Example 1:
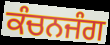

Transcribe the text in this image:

ਕੰਚਨਜੰਗ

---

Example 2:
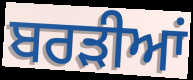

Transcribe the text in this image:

ਬਰੜੀਆਂ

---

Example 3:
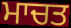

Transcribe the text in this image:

ਮਾਚਤ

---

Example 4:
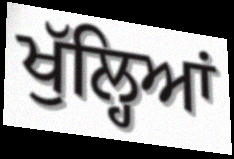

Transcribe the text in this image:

ਖੁੱਲ੍ਹਿਆਂ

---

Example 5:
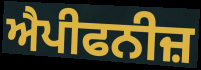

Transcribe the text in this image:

ਐਪੀਫਨੀਜ਼